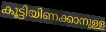
കൂട്ടിയിണക്കാനുള്ള